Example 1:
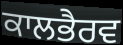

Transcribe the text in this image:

ਕਾਲਭੈਰਵ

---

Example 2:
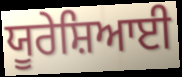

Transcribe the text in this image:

ਯੂਰੇਸ਼ਿਆਈ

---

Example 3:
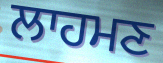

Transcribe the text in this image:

ਲਾਹਮਣ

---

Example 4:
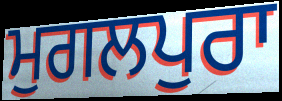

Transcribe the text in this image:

ਮੁਗਲਪੁਰਾ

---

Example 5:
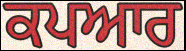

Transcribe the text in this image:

ਕਪਆਰ